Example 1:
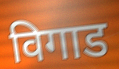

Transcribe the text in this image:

विगाड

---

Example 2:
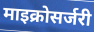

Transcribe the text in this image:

माइक्रोसर्जरी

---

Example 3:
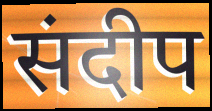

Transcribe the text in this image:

संदीप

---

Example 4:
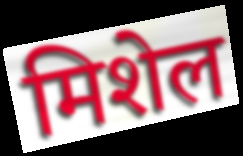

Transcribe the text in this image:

मिशेल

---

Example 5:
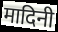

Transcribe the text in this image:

मादिनी